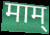
माम्